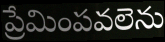
ప్రేమింపవలెను